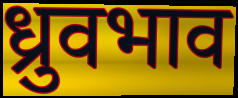
ध्रुवभाव